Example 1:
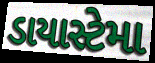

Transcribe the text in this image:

ડાયાસ્ટેમા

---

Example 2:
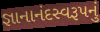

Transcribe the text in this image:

જ્ઞાનાનંદસ્વરૂપનું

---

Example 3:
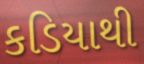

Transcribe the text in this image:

કડિયાથી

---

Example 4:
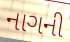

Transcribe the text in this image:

નાગની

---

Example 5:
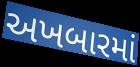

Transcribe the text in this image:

અખબારમાં